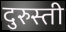
दुरुस्ती